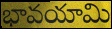
భావయామి